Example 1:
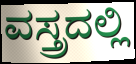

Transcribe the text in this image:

ವಸ್ತ್ರದಲ್ಲಿ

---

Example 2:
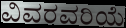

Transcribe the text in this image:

ವಿವರವರಿಯೆ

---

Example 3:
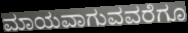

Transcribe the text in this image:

ಮಾಯವಾಗುವವರೆಗೂ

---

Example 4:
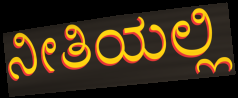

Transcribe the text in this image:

ನೀತಿಯಲ್ಲಿ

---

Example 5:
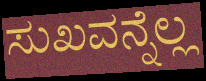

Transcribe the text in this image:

ಸುಖವನ್ನೆಲ್ಲ